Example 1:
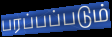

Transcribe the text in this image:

பரப்பப்படும்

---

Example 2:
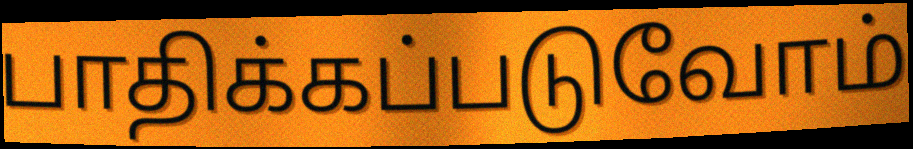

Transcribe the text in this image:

பாதிக்கப்படுவோம்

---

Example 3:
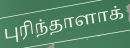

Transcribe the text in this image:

புரிந்தாளாக்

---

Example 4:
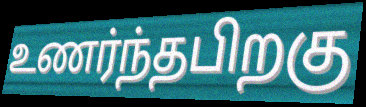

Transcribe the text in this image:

உணர்ந்தபிறகு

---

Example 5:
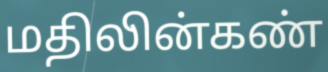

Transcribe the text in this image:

மதிலின்கண்